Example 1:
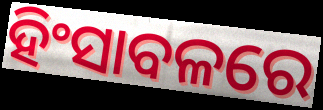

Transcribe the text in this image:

ହିଂସାବଳରେ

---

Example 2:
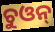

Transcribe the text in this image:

ଚୁଓନ୍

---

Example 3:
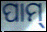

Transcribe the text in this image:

ପାମ୍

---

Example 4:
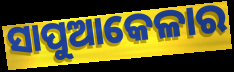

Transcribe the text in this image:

ସାପୁଆକେଳାର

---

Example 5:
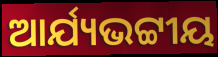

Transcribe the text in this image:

ଆର୍ଯ୍ୟଭଟ୍ଟୀୟ